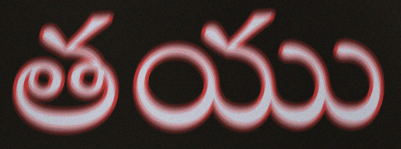
తయు